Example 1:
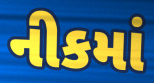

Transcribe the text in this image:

નીકમાં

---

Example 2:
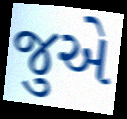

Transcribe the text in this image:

જુએ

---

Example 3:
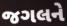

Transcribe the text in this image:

જગલને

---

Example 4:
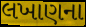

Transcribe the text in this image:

લખાણના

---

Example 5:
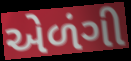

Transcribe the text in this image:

એળંગી